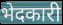
भेदकारी